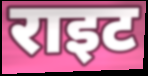
राइट